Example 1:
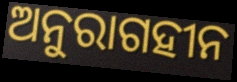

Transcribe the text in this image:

ଅନୁରାଗହୀନ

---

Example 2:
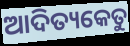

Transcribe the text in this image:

ଆଦିତ୍ୟକେତୁ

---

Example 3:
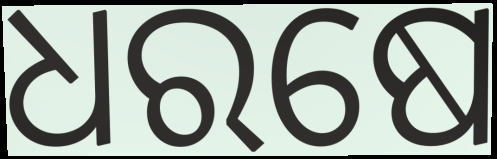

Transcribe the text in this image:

ଧରଷେ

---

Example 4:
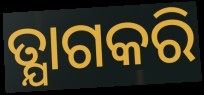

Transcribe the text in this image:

ତ୍ଯାଗକରି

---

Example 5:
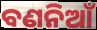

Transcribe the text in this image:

ବଣନିଆଁ